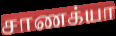
சாணக்யா